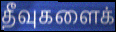
தீவுகளைக்